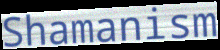
Shamanism